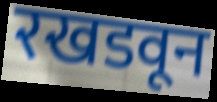
रखडवून